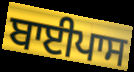
ਬਾਈਪਾਸ